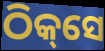
ଠିକ୍‌ସେ